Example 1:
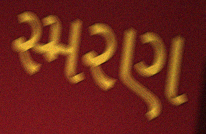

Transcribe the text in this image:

સ્મરણ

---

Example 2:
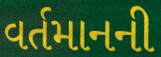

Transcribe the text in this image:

વર્તમાનની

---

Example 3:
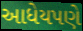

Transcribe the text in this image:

આધેયપણે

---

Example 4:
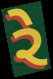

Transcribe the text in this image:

રે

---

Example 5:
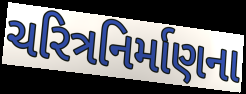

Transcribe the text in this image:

ચરિત્રનિર્માણના